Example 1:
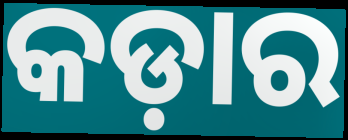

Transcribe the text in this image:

କଡ଼ାର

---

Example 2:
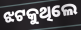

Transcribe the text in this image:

ଝଟକୁଥିଲେ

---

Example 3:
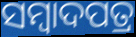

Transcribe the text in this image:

ସମ୍ୱାଦପତ୍ର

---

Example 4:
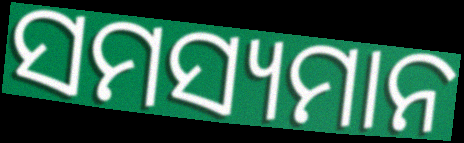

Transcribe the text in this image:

ସମସ୍ୟମାନ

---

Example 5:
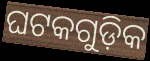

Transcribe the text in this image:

ଘଟକଗୁଡ଼ିକ